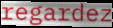
regardez